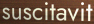
suscitavit